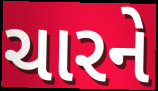
ચારને